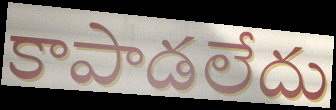
కాపాడలేదు